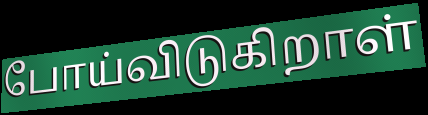
போய்விடுகிறாள்